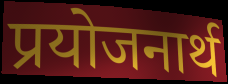
प्रयोजनार्थ